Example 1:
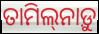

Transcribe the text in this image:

ତାମିଲ୍‌ନାଡ଼ୁ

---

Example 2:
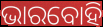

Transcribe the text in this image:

ଭାରବୋହି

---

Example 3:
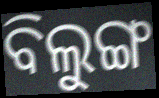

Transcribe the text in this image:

ବିଲୁଙ୍ଗ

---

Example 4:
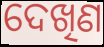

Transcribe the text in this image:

ଦେଖିଣ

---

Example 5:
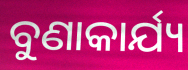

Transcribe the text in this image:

ବୁଣାକାର୍ଯ୍ୟ